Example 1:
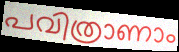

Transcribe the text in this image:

പവിത്രാണാം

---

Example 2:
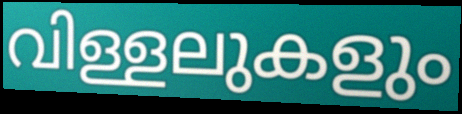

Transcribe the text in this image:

വിള്ളലുകളും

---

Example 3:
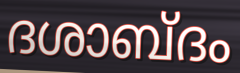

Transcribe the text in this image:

ദശാബ്ദം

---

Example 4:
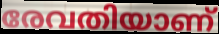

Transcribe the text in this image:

രേവതിയാണ്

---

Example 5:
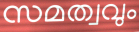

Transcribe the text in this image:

സമത്വവും